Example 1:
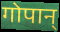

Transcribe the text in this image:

गोपान्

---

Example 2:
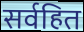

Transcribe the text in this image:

सर्वहित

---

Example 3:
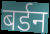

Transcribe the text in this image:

बर्डन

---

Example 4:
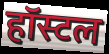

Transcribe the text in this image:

हॉस्टल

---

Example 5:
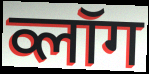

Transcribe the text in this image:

व्लॉग